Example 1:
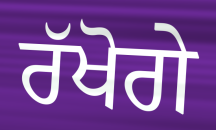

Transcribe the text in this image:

ਰੱਖੋਗੇ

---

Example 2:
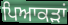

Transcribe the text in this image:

ਪਿਆਕੜਾਂ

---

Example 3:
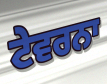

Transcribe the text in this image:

ਟੇਵਰਨਾ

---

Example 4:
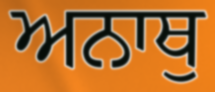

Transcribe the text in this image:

ਅਨਾਥੁ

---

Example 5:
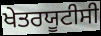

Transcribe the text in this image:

ਖੇਤਰਯੂਟੀਸੀ